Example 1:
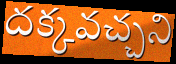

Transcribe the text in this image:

దక్కవచ్చని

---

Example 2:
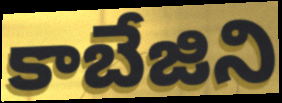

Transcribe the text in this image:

కాబేజిని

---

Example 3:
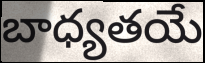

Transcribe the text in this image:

బాధ్యతయే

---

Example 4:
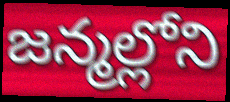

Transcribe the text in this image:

జన్మల్లోని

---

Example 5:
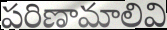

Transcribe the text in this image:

పరిణామాలివి